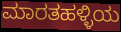
ಮಾರತಹಳ್ಳಿಯ